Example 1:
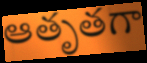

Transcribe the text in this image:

ఆతృతగా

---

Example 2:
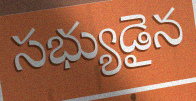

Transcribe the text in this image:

సభ్యుడైన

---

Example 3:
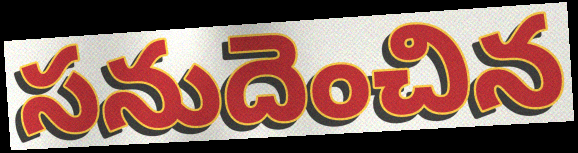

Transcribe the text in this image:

సనుదెంచిన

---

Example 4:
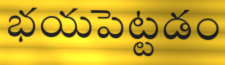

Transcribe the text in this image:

భయపెట్టడం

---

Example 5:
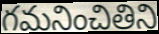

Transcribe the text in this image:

గమనించితిని